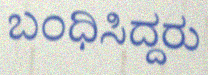
ಬಂಧಿಸಿದ್ದರು